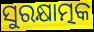
ସୁରକ୍ଷାତ୍ମକ